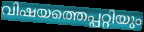
വിഷയത്തെപ്പറ്റിയും